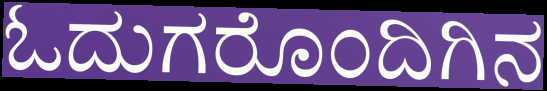
ಓದುಗರೊಂದಿಗಿನ